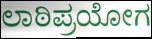
ಲಾಠಿಪ್ರಯೋಗ